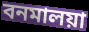
বনমালয়া